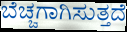
ಬೆಚ್ಚಗಾಗಿಸುತ್ತದೆ